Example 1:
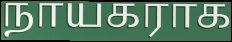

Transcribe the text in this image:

நாயகராக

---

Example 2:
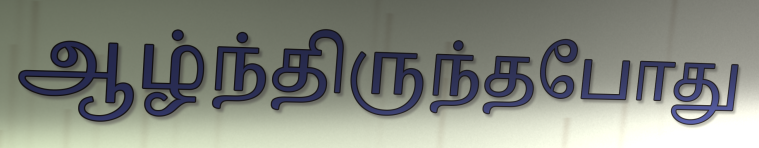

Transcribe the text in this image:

ஆழ்ந்திருந்தபோது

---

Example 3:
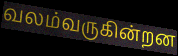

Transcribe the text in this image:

வலம்வருகின்றன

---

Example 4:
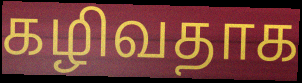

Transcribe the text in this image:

கழிவதாக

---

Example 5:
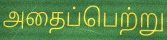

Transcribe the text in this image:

அதைப்பெற்று